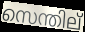
സെന്തില്